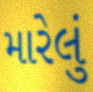
મારેલું